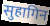
सुहागिन